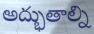
అద్భుతాల్ని